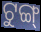
ଟୁଙ୍ଗ୍